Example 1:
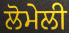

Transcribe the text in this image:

ਲੋਮੇਲੀ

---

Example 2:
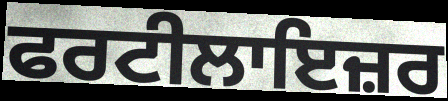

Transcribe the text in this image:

ਫਰਟੀਲਾਇਜ਼ਰ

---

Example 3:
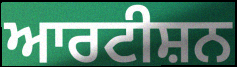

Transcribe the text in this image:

ਆਰਟੀਸ਼ਨ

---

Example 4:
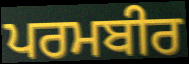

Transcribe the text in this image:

ਪਰਮਬੀਰ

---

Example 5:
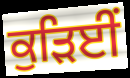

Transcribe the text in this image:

ਕੁੜਿਈਂ